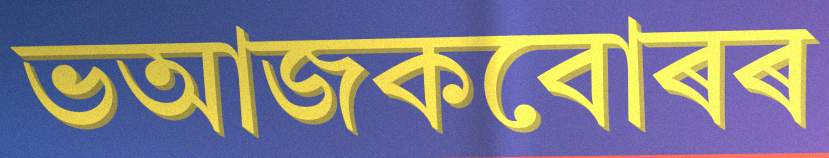
ভআজকবোৰৰ